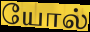
யோல்